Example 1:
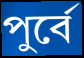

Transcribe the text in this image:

পুর্বে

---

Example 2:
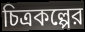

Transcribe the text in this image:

চিত্রকল্পের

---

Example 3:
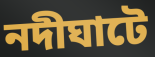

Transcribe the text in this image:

নদীঘাটে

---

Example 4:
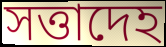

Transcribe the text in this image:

সত্তাদেহ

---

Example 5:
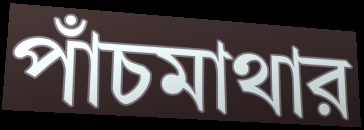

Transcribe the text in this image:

পাঁচমাথার